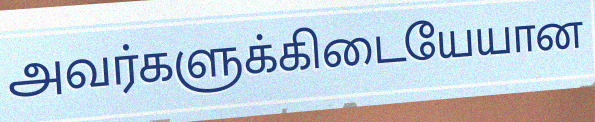
அவர்களுக்கிடையேயான